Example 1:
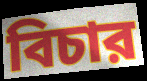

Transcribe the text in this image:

বিচার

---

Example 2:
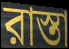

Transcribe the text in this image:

রাস্তা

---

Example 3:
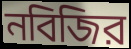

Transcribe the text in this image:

নবিজির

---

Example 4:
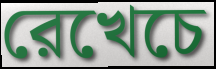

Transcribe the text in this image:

রেখেচে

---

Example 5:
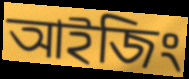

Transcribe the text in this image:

আইজিং